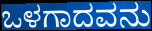
ಒಳಗಾದವನು